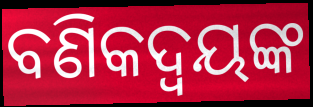
ବଣିକଦ୍ଵୟଙ୍କ